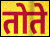
तोते